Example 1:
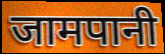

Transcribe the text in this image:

जामपानी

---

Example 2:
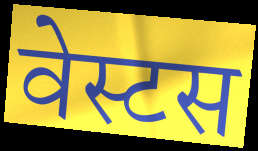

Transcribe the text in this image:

वेस्टस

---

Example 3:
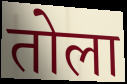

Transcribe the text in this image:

तोला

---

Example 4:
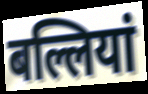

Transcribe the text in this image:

बल्लियां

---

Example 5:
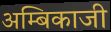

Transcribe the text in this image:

अम्बिकाजी